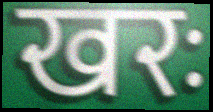
खरः